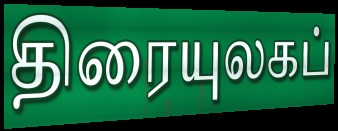
திரையுலகப்